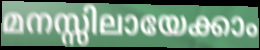
മനസ്സിലായേക്കാം